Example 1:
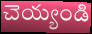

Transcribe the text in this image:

చెయ్యండి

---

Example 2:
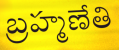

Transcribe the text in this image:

బ్రహ్మణేతి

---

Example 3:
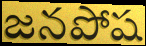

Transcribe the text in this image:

జనపోష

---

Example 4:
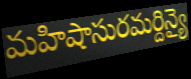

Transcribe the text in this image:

మహిషాసురమర్దిన్యై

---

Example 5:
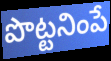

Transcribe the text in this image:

పొట్టనింపే